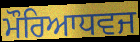
ਮੌਰਿਆਧਵਜ